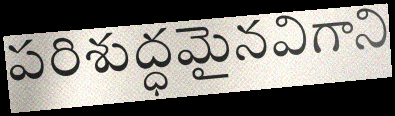
పరిశుద్ధమైనవిగాని